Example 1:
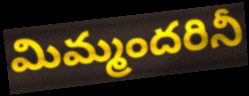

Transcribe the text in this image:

మిమ్మందరినీ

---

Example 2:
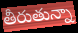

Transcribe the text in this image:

తీరుతున్నా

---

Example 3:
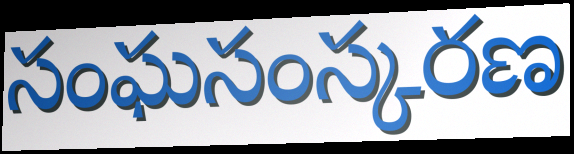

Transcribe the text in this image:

సంఘసంస్కరణ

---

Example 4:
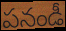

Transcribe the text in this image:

పనండీ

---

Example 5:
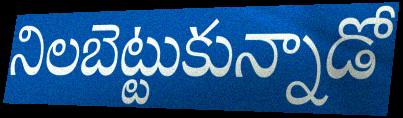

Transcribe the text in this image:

నిలబెట్టుకున్నాడో